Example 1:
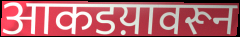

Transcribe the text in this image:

आकडय़ावरून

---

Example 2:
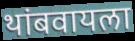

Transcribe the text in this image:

थांबवायला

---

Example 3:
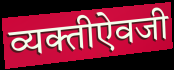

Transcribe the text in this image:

व्यक्तीऐवजी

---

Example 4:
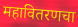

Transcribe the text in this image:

महावितरणचा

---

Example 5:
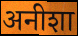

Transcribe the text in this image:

अनीशा